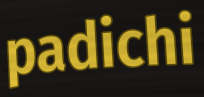
padichi